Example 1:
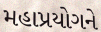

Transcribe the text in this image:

મહાપ્રયોગને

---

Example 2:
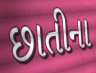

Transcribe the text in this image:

છાતીના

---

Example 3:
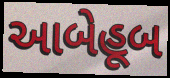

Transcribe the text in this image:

આબેહૂબ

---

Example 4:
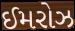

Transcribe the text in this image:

ઈમરોઝ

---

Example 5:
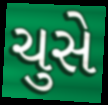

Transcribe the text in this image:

ચુસે